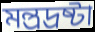
মন্ত্রদ্রষ্টা